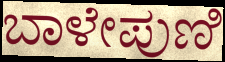
ಬಾಳೇಪುಣಿ